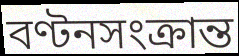
বণ্টনসংক্রান্ত